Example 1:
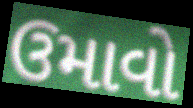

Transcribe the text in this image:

ઉમાવો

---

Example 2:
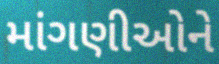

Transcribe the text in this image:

માંગણીઓને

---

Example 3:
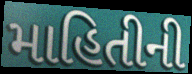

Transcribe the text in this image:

માહિતીની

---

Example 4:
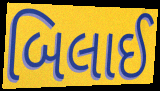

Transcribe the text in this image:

બિલાઈ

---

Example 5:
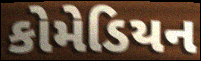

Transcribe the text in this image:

કોમેડિયન